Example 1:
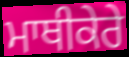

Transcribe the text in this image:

ਮਾਥੀਕੇਰੇ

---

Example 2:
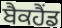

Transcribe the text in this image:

ਬੈਕਹੈਂਡ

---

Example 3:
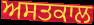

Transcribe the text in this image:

ਅਸਤਕਾਲ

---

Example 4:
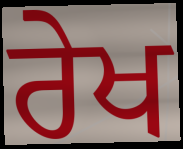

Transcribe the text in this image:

ਰੇਖ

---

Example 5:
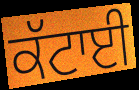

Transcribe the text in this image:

ਕੱਟਾਈ